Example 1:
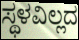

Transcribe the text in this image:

ಸ್ಥಳವಿಲ್ಲದ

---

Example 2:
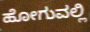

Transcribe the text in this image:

ಹೋಗುವಲ್ಲಿ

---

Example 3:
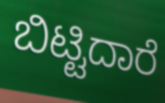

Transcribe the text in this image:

ಬಿಟ್ಟಿದಾರೆ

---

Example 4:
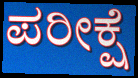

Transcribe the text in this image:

ಪರೀಕ್ಷೆ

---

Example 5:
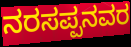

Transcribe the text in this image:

ನರಸಪ್ಪನವರ